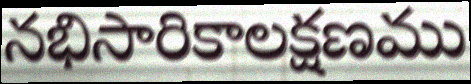
నభిసారికాలక్షణము